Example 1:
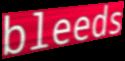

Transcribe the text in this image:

bleeds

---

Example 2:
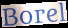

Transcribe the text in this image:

Borel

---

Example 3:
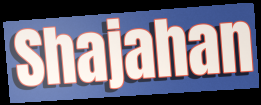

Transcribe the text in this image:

Shajahan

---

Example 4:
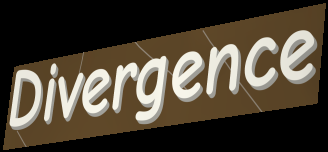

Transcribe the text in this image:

Divergence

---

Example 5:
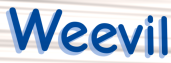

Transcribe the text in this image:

Weevil